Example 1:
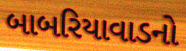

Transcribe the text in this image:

બાબરિયાવાડનો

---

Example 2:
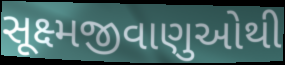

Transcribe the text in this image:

સૂક્ષ્મજીવાણુઓથી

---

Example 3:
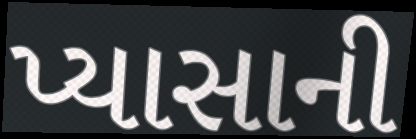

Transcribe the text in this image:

પ્યાસાની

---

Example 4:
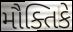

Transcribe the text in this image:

મૌક્તિકે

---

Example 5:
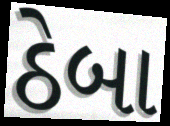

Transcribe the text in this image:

ઠેબા